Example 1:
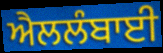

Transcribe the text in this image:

ਐਲਲੰਬਾਈ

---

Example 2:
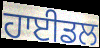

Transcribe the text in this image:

ਹਾਈਡਲ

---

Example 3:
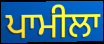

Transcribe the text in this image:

ਪਾਮੀਲਾ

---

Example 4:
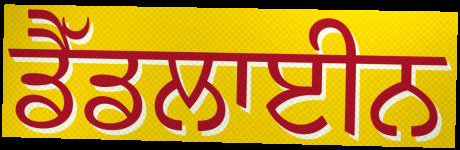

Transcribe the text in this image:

ਡੈੱਡਲਾਈਨ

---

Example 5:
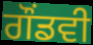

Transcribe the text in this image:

ਗੌਂਡਵੀ